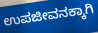
ಉಪಜೀವನಕ್ಕಾಗಿ